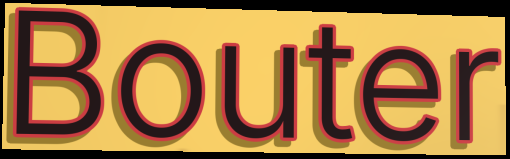
Bouter